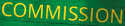
COMMISSION